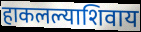
हाकलल्याशिवाय